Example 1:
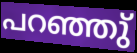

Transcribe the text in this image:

പറഞ്ഞു്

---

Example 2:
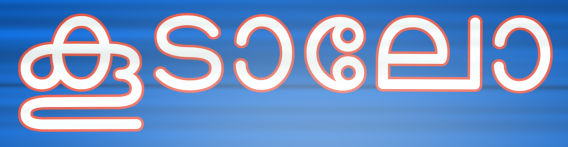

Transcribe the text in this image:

കൂടാലോ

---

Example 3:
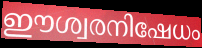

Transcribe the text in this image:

ഈശ്വരനിഷേധം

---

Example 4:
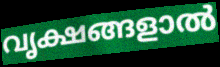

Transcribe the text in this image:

വൃക്ഷങ്ങളാൽ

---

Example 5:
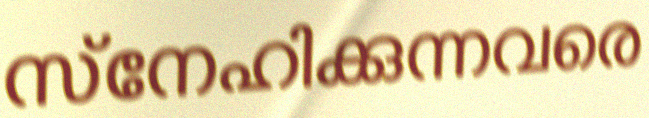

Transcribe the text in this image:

സ്‌നേഹിക്കുന്നവരെ